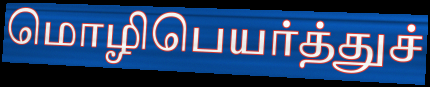
மொழிபெயர்த்துச்